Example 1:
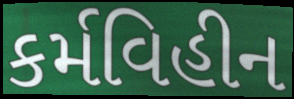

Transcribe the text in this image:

કર્મવિહીન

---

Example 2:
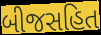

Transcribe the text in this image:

બીજસહિત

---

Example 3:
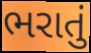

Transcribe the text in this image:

ભરાતું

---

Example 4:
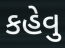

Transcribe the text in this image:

કહેવુ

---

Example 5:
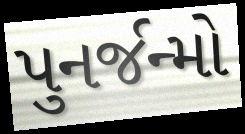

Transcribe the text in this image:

પુનર્જન્મો